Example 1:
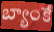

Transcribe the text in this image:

బ్యాంకే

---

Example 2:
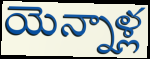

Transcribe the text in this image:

యెన్నాళ్ల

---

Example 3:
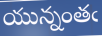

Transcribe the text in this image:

యున్నంతఁ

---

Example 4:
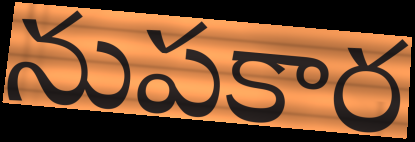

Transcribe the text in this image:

నుపకార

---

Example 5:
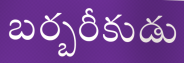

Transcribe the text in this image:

బర్బరీకుడు